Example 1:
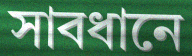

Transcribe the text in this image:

সাবধানে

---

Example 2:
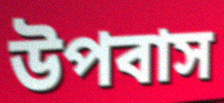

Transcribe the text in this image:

উপবাস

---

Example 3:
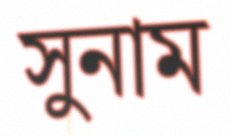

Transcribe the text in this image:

সুনাম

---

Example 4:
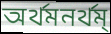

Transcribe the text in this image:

অর্থমনর্থম্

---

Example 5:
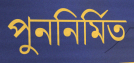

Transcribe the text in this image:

পুননির্মিত